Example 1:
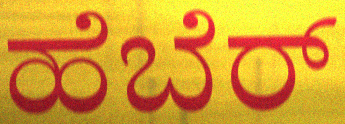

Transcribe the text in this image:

ಹೆಬೆರ್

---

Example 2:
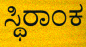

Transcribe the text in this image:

ಸ್ಥಿರಾಂಕ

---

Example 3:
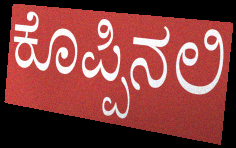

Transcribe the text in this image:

ಕೊಪ್ಪಿನಲಿ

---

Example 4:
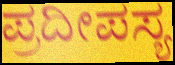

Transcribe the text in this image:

ಪ್ರದೀಪಸ್ಯ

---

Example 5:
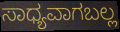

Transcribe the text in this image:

ಸಾಧ್ಯವಾಗಬಲ್ಲ